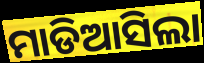
ମାଡିଆସିଲା